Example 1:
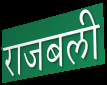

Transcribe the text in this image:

राजबली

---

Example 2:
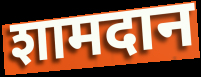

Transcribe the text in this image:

शामदान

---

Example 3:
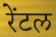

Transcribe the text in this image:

रेंटल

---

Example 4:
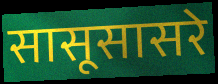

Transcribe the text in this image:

सासूसासरे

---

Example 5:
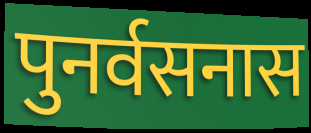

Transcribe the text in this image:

पुनर्वसनास